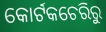
କୋର୍ଟକଚେରିରୁ